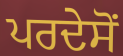
ਪਰਦੇਸੋਂ